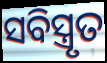
ସବିସ୍ତ୍ରୃତ